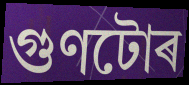
গুণটোৰ